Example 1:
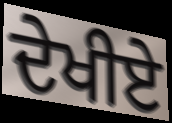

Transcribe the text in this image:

ਦੇਖੀਏ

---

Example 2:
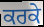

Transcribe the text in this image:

ਕਰਕੇ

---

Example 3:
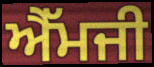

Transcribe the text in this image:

ਐੱਮਜੀ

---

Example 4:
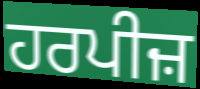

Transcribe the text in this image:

ਹਰਪੀਜ਼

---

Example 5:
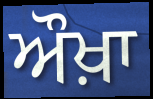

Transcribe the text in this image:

ਔਖ਼ਾ